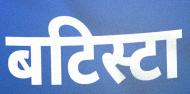
बटिस्टा